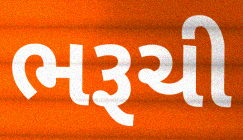
ભરૂચી